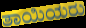
ತಾಯಿಯರು